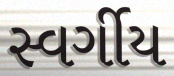
સ્વર્ગીય